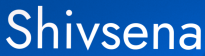
Shivsena